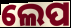
ଲେପ